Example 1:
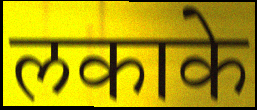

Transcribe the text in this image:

लकाके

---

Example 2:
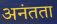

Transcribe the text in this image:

अनंतता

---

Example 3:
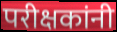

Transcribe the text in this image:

परीक्षकांनी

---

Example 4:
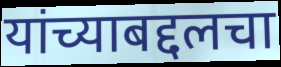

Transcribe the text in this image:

यांच्याबद्दलचा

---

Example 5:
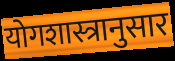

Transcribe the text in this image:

योगशास्त्रानुसार